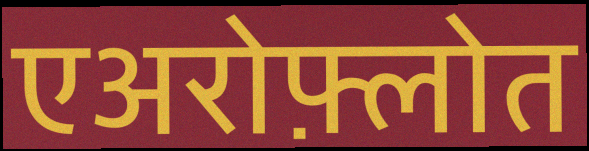
एअरोफ़्लोत